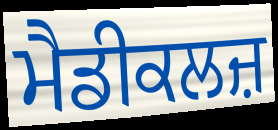
ਮੈਡੀਕਲਜ਼